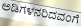
ಅಡಿಗಳನರಿದವಂಗೆ